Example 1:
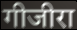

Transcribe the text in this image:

गीजीरा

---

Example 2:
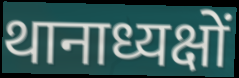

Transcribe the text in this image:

थानाध्यक्षों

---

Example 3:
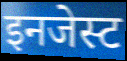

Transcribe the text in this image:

इनजेस्ट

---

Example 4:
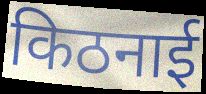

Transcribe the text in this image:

किठनाई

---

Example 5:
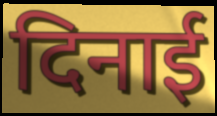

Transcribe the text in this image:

दिनाई